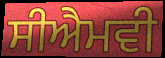
ਸੀਐਮਵੀ